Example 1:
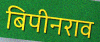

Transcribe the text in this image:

बिपीनराव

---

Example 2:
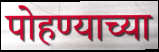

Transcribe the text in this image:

पोहण्याच्या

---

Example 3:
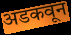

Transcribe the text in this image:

अडकवून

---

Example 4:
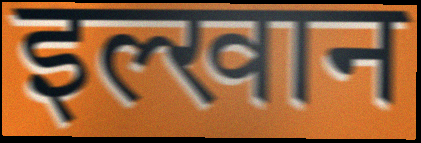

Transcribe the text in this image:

इल्खान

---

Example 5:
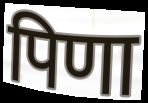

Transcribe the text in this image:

पिणा